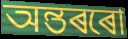
অন্তৰৰো